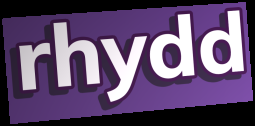
rhydd